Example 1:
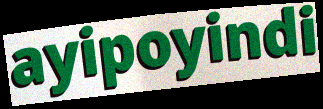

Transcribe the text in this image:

ayipoyindi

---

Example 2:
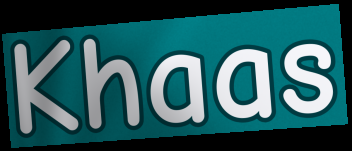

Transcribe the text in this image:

Khaas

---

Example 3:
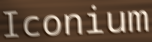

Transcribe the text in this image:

Iconium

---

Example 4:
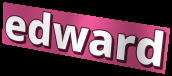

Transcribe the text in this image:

edward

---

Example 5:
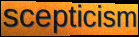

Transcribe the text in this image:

scepticism